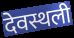
देवस्थली